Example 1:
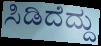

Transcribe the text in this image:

ಸಿಡಿದೆದ್ದು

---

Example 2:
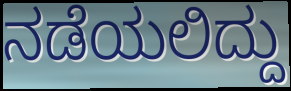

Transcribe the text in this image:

ನಡೆಯಲಿದ್ದು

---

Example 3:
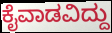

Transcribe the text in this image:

ಕೈವಾಡವಿದ್ದು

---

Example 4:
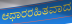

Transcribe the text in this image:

ಆಧಾರರಹಿತವಾದ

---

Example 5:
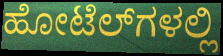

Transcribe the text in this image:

ಹೋಟೆಲ್‍ಗಳಲ್ಲಿ